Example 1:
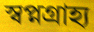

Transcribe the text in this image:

স্বপ্নগ্রাহ্য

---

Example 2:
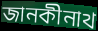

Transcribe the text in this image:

জানকীনাথ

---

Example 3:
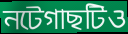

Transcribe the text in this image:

নটেগাছটিও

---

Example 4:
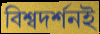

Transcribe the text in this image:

বিশ্বদর্শনই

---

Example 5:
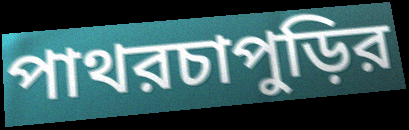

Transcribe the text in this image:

পাথরচাপুড়ির